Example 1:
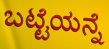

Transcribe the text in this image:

ಬಟ್ಟೆಯನ್ನೆ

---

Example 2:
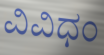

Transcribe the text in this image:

ವಿವಿಧಂ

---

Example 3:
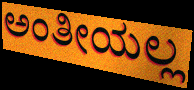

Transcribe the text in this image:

ಅಂತೀಯಲ್ಲ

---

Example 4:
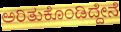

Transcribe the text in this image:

ಅರಿತುಕೊಂಡಿದ್ದೇನೆ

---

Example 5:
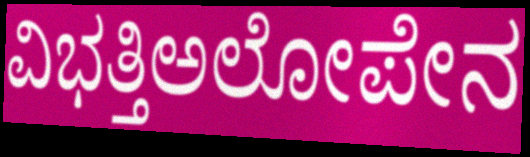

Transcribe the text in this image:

ವಿಭತ್ತಿಅಲೋಪೇನ